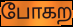
போகற